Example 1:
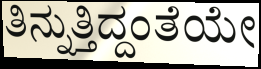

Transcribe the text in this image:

ತಿನ್ನುತ್ತಿದ್ದಂತೆಯೇ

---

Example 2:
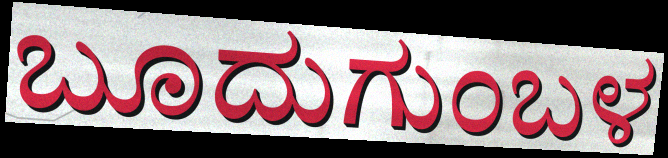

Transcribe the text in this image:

ಬೂದುಗುಂಬಳ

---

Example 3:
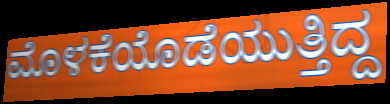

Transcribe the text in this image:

ಮೊಳಕೆಯೊಡೆಯುತ್ತಿದ್ದ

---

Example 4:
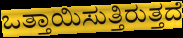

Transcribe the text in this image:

ಒತ್ತಾಯಿಸುತ್ತಿರುತ್ತದೆ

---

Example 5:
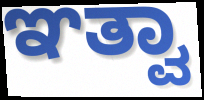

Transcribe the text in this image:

ಞತ್ವಾ